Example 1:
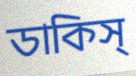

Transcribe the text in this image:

ডাকিস্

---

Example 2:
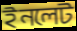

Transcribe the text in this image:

ইনলেট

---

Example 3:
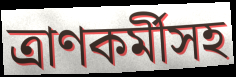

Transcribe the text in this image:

ত্রাণকর্মীসহ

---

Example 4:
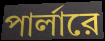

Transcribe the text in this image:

পার্লারে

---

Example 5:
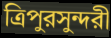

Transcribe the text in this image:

ত্রিপুরসুন্দরী